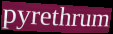
pyrethrum